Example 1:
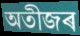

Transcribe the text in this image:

অতীজৰ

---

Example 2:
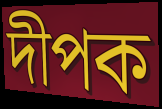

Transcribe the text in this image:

দীপক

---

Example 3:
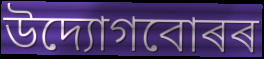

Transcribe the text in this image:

উদ্যোগবোৰৰ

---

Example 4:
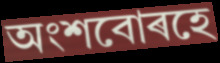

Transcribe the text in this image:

অংশবোৰহে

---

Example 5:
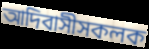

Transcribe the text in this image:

আদিবাসীসকলক